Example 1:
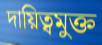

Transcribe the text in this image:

দায়িত্বমুক্ত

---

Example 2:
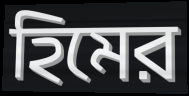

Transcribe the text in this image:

হিমের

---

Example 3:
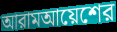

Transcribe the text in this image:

আরামআয়েশের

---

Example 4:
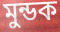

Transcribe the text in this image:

মুন্ডক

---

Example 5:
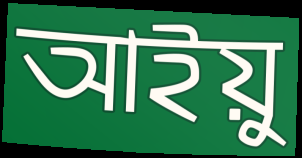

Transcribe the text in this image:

আইয়ু